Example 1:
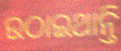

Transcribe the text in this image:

ଉଠାଇଥାନ୍ତି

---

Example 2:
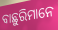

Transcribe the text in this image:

ବାଛୁରିମାନେ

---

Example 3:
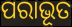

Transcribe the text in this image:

ପରାଭୂତ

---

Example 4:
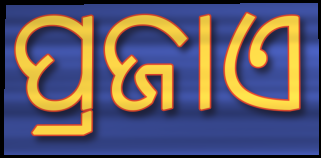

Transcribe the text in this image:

ପ୍ରଜାଏ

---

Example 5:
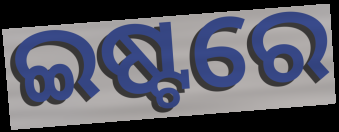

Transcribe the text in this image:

ଇଷ୍ଟରେ